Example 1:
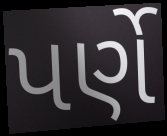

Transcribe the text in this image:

પર્ણે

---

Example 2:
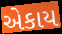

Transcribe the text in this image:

એકાય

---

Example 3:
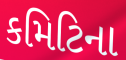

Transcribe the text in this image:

કમિટિના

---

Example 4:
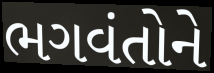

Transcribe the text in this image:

ભગવંતોને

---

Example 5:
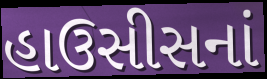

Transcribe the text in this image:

હાઉસીસનાં